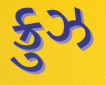
ક્રુઝ